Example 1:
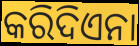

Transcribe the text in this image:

କରିଦିଏନା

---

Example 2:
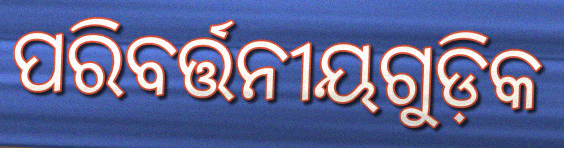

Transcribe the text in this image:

ପରିବର୍ତ୍ତନୀୟଗୁଡ଼ିକ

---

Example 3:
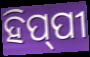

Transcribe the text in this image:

ହିପ୍‍ପୀ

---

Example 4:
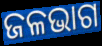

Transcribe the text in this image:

ଜଳଭାଗ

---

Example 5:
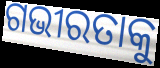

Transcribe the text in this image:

ଗଭୀରତାକୁ